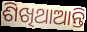
ଶିଖିଥାଆନ୍ତି